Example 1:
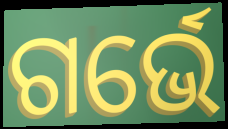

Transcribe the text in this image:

ଗର୍ଭେ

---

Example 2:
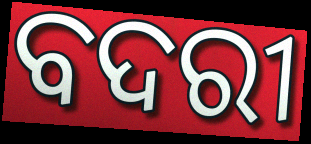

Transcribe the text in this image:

ବଦରୀ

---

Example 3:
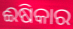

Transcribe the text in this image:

ଈଷିକାର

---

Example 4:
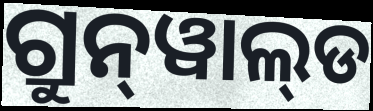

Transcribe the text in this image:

ଗ୍ରୁନ୍‌ୱାଲ୍‌ଡ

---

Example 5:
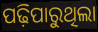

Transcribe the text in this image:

ପଢ଼ିପାରୁଥିଲା